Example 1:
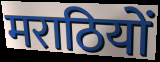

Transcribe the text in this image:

मराठियों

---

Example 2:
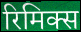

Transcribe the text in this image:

रिमिक्स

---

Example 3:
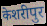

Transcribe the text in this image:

केशरीपुर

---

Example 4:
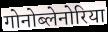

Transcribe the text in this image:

गोनोब्लेनोरिया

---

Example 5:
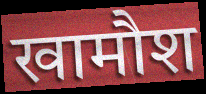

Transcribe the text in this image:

खामौश